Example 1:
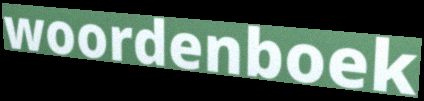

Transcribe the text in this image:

woordenboek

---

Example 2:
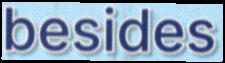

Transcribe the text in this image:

besides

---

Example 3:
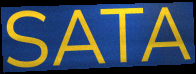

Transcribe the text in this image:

SATA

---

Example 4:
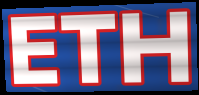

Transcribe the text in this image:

ETH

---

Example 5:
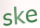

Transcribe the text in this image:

ske